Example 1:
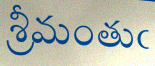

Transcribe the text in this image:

శ్రీమంతుఁ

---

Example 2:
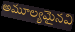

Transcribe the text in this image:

అమూల్యమైనవి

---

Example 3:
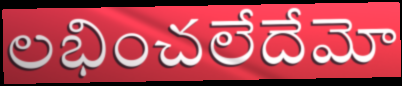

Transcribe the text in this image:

లభించలేదేమో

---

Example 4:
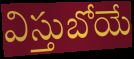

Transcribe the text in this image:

విస్తుబోయే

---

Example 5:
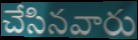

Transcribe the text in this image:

చేసినవారు